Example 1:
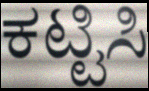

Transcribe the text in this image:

ಕಟ್ಟಿಸಿ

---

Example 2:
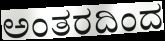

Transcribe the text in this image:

ಅಂತರದಿಂದ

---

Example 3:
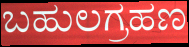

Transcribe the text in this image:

ಬಹುಲಗ್ರಹಣ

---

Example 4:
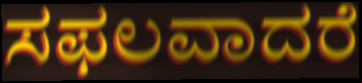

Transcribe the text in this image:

ಸಫಲವಾದರೆ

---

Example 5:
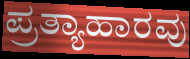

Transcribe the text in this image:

ಪ್ರತ್ಯಾಹಾರವು